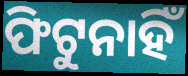
ଫିଟୁନାହିଁ